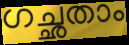
ഗച്ഛതാം